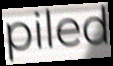
piled